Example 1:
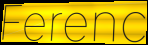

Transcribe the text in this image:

Ferenc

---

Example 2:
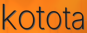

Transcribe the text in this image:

kotota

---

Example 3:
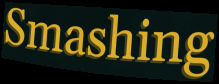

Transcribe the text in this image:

Smashing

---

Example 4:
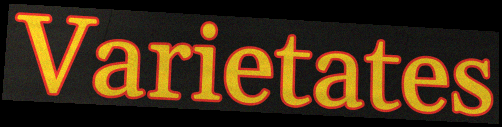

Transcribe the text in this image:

Varietates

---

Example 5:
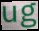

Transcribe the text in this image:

ug